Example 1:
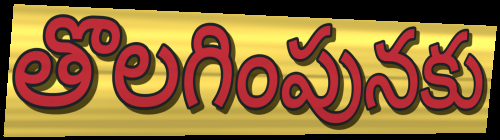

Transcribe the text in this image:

తొలగింపునకు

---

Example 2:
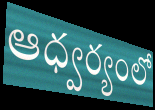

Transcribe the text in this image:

ఆధ్వర్యంలో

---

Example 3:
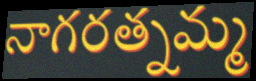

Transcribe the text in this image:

నాగరత్నమ్మ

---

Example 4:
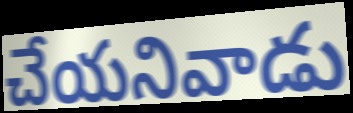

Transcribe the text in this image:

చేయనివాడు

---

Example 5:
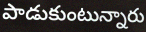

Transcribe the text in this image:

పాడుకుంటున్నారు